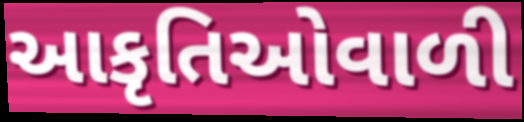
આકૃતિઓવાળી